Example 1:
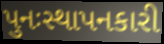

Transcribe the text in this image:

પુનઃસ્થાપનકારી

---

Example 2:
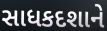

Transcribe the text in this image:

સાધકદશાને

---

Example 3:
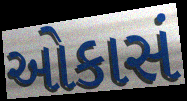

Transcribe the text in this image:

ઓકાસં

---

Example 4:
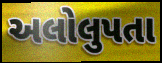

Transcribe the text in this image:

અલોલુપતા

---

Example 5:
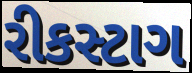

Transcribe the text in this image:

રીકસ્ટાગ